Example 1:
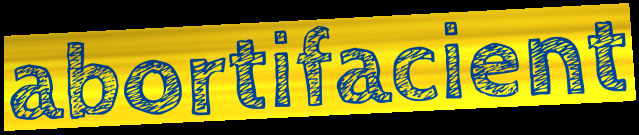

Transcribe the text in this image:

abortifacient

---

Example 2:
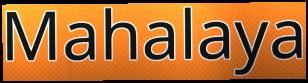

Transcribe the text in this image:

Mahalaya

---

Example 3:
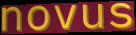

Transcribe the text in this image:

novus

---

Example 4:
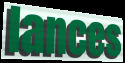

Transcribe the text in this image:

lances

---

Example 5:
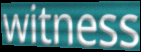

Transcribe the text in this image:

witness